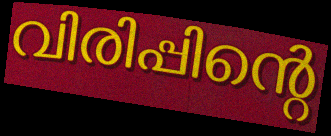
വിരിപ്പിന്റെ